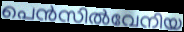
പെൻസിൽവേനിയ